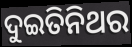
ଦୁଇତିନିଥର